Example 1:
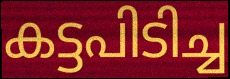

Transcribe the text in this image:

കട്ടപിടിച്ച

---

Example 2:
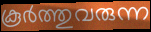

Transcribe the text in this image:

കൂർത്തുവരുന്ന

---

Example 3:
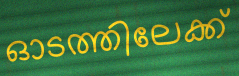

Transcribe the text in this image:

ഓടത്തിലേക്ക്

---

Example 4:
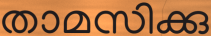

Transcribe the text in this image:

താമസിക്കു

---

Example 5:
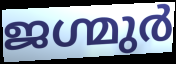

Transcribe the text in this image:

ജഗ്മുർ